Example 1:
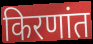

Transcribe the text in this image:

किरणांत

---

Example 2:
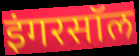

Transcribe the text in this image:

इंगरसॉल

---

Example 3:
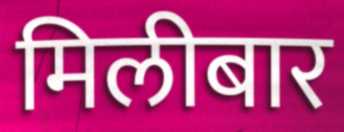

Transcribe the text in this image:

मिलीबार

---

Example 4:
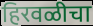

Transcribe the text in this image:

हिरवळीचा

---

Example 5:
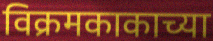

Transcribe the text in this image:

विक्रमकाकाच्या